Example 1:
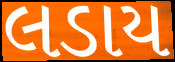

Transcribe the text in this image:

લડાય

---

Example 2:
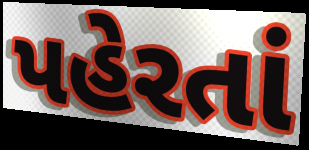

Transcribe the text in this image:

પહેરતાં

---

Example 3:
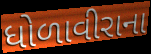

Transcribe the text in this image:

ધોળાવીરાના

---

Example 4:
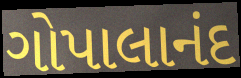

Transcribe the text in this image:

ગોપાલાનંદ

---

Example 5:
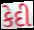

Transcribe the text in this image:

કેદી